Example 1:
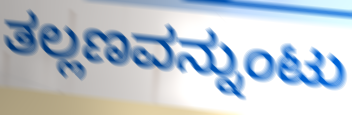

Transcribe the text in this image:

ತಲ್ಲಣವನ್ನುಂಟು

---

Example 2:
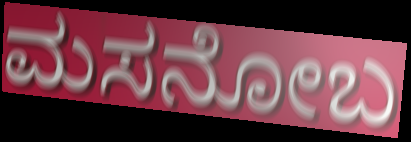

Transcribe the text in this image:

ಮಸನೋಬ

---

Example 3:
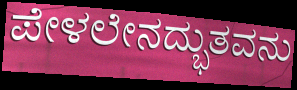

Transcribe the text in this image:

ಪೇಳಲೇನದ್ಭುತವನು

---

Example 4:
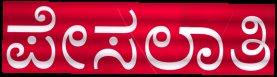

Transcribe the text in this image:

ಪೇಸಲಾತಿ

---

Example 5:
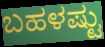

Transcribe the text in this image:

ಬಹಳಷ್ಟು